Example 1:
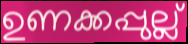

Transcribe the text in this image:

ഉണക്കപ്പുല്ല്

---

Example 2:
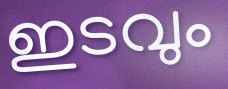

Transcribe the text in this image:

ഇടവും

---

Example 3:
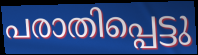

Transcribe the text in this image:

പരാതിപ്പെട്ടു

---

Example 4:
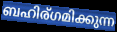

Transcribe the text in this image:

ബഹിര്ഗമിക്കുന്ന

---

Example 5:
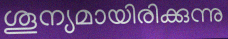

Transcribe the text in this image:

ശൂന്യമായിരിക്കുന്നു